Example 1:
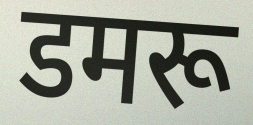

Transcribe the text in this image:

डमरू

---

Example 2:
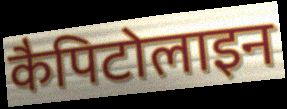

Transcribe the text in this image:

कैपिटोलाइन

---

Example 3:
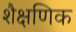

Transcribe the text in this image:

शैक्षणिक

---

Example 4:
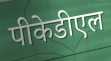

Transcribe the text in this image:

पीकेडीएल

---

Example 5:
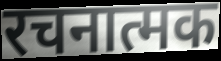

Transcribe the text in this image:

रचनात्मक